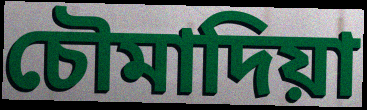
চৌমাদিয়া